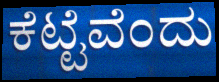
ಕೆಟ್ಟೆವೆಂದು